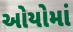
ઓયોમાં